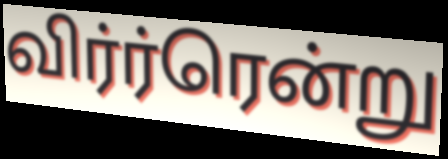
விர்ர்ரென்று